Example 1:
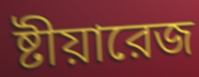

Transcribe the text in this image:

ষ্টীয়ারেজ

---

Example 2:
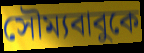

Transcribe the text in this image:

সৌম্যবাবুকে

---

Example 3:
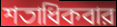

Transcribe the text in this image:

শতাধিকবার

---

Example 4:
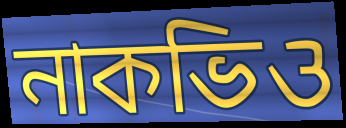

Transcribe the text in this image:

নাকভিও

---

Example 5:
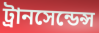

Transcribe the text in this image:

ট্রানসেন্ডেন্স